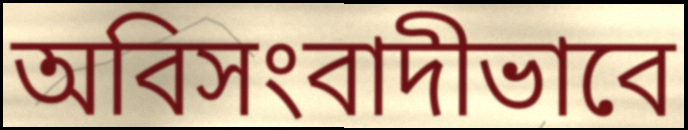
অবিসংবাদীভাবে